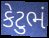
કેટુભં